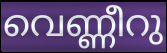
വെണ്ണീറു